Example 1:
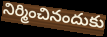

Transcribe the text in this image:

నిర్మించినందుకు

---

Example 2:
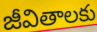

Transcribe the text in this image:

జీవితాలకు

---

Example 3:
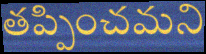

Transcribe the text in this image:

తప్పించమని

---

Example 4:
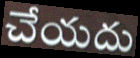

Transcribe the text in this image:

చేయదు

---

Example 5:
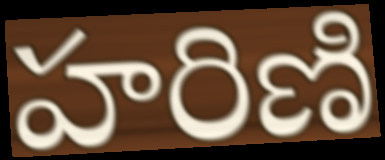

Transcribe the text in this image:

హరిణి